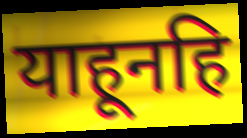
याहूनहि